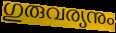
ഗുരുവര്യനും